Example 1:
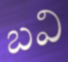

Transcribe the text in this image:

బవి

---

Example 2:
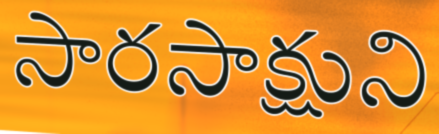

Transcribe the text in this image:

సారసాక్షుని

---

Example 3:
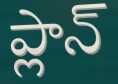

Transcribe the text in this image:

ప్లాన్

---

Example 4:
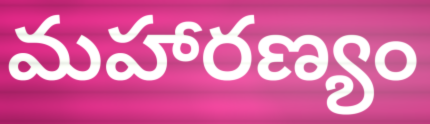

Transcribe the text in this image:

మహారణ్యం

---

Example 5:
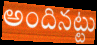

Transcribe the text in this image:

అందినట్టు